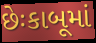
છેઃકાબૂમાં